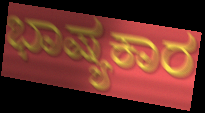
ಭಾಷ್ಯಕಾರ